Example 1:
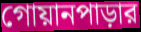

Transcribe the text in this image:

গোয়ানপাড়ার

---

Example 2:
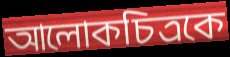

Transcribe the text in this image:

আলোকচিত্রকে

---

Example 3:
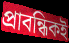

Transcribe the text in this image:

প্রাবন্ধিকই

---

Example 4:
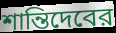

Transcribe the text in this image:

শান্তিদেবের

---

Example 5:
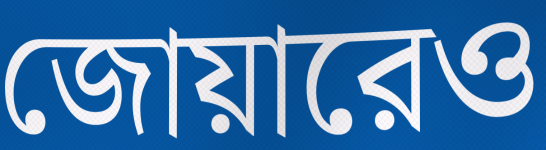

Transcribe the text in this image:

জোয়ারেও